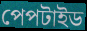
পেপটাইড